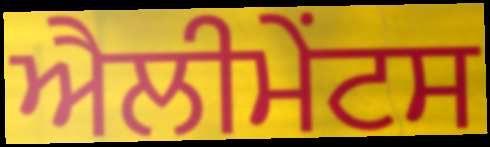
ਐਲੀਮੇੰਟਸ